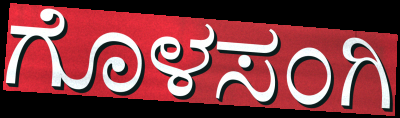
ಗೊಳಸಂಗಿ